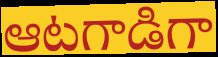
ఆటగాడిగా